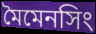
মৈমেনসিং